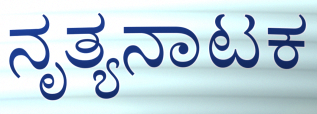
ನೃತ್ಯನಾಟಕ